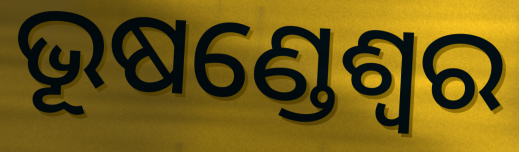
ଭୂଷଣ୍ଡେଶ୍ଵର